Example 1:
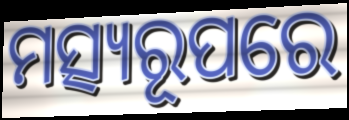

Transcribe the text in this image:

ମତ୍ସ୍ୟରୂପରେ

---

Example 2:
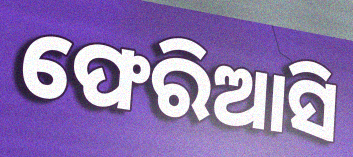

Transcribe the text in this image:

ଫେରିଆସି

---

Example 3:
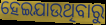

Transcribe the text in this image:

ହେଇଯାଉଥିବାରୁ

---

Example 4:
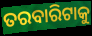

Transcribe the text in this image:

ତରବାରିଟାକୁ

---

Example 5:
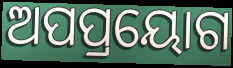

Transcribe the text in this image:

ଅପପ୍ରୟୋଗ